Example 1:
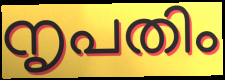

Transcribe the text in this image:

നൃപതിം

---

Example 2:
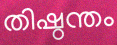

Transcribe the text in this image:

തിഷ്ഠന്തം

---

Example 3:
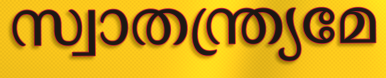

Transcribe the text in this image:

സ്വാതന്ത്ര്യമേ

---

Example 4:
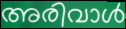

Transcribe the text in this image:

അരിവാൾ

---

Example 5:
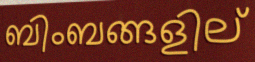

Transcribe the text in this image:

ബിംബങ്ങളില്